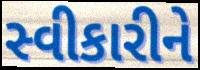
સ્વીકારીને